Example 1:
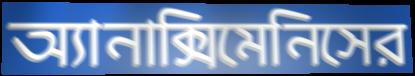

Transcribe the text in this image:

অ্যানাক্সিমেনিসের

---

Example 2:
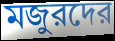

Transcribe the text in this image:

মজুরদের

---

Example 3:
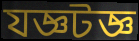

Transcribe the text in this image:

যজ্ঞটজ্ঞ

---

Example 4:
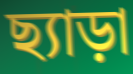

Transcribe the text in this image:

ছ্যাড়া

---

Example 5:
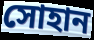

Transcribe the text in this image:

সোহান